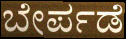
ಬೇರ್ಪಡೆ